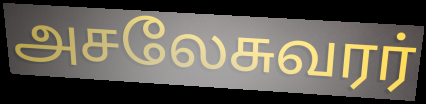
அசலேசுவரர்